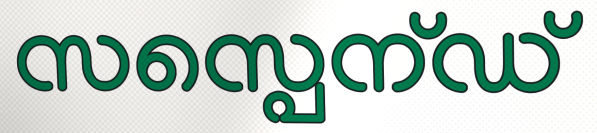
സസ്പെന്ഡ്